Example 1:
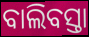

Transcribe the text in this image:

ବାଲିବସ୍ତା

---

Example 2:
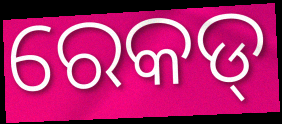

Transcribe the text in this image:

ରେକଡ୍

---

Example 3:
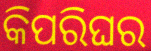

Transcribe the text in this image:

କିପରିଘର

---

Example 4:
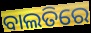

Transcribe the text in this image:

ବାଲତିରେ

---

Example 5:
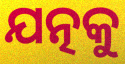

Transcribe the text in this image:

ଯତ୍ନକୁ